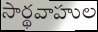
సార్థవాహుల